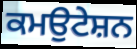
ਕਮਉਟੇਸ਼ਨ